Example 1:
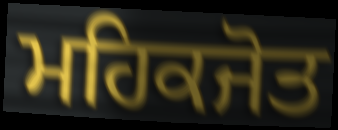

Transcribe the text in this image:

ਮਹਿਕਜੋਤ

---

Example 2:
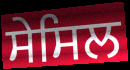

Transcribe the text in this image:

ਸੇਸਿਲ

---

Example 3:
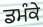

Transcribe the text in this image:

ਡਮੰਕੇ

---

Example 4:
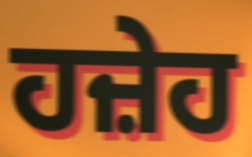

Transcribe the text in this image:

ਹਜ਼ੇਹ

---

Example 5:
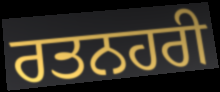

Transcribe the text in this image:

ਰਤਨਹਰੀ